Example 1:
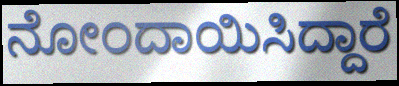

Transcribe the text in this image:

ನೋಂದಾಯಿಸಿದ್ದಾರೆ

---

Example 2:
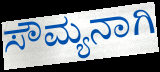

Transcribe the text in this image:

ಸೌಮ್ಯನಾಗಿ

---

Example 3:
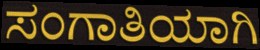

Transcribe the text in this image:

ಸಂಗಾತಿಯಾಗಿ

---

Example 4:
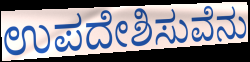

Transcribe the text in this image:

ಉಪದೇಶಿಸುವೆನು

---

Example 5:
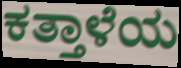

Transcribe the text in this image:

ಕತ್ತಾಳೆಯ